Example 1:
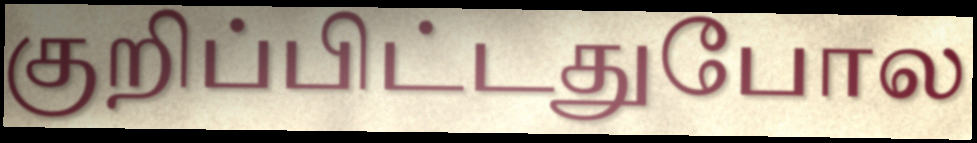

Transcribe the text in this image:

குறிப்பிட்டதுபோல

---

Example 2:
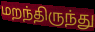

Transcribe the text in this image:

மறந்திருந்து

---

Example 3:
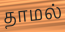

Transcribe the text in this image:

தாமல்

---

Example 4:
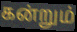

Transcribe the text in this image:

கன்றும்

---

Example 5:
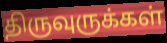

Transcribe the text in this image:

திருவுருக்கள்